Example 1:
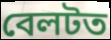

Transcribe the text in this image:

বেলটত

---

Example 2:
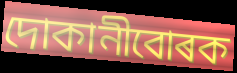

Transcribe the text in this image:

দোকানীবোৰক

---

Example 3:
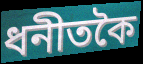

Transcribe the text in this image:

ধনীতকৈ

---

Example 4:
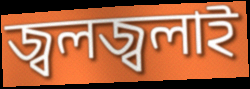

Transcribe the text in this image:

জ্বলজ্বলাই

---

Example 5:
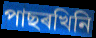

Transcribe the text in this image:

পাছৰখিনি